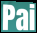
Pai